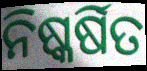
ନିଷ୍କର୍ଷିତ